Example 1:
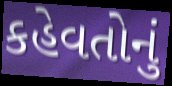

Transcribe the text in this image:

કહેવતોનું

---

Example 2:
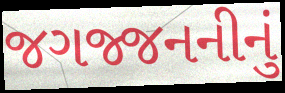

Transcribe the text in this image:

જગજ્જનનીનું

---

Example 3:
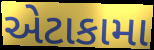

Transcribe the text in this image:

એટાકામા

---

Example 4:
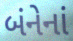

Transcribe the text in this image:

બંનેનાં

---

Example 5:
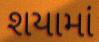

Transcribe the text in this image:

શયામાં